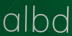
albd